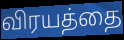
விரயத்தை